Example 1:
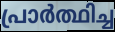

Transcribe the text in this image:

പ്രാർത്ഥിച്ച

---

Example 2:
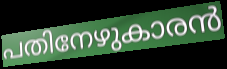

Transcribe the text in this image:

പതിനേഴുകാരൻ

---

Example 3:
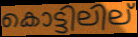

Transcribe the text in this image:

കൊട്ടിലില്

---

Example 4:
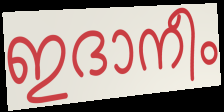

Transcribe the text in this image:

ഇദാനീം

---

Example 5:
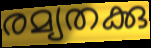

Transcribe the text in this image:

രമ്യതക്കു